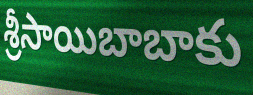
శ్రీసాయిబాబాకు